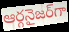
ఆర్గనైజర్‌గా